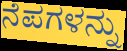
ನೆಪಗಳನ್ನು